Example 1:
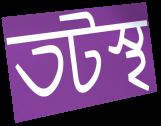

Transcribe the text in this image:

তটস্থ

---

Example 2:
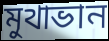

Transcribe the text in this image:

মুথাভান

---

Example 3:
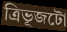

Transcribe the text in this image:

ত্ৰিভূজটো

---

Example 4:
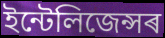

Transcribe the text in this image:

ইন্টেলিজেন্সৰ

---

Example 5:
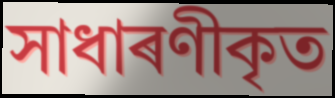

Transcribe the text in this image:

সাধাৰণীকৃত